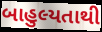
બાહુલ્યતાથી